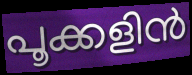
പൂക്കളിൻ